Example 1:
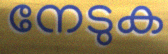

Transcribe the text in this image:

നേടുക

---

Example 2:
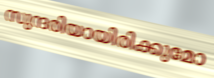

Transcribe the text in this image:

സുന്ദരിയായിരിക്കുമോ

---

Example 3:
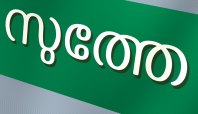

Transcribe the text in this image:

സുത്തേ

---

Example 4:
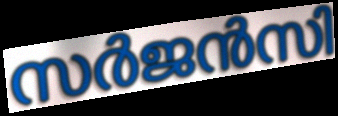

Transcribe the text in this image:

സർജൻസി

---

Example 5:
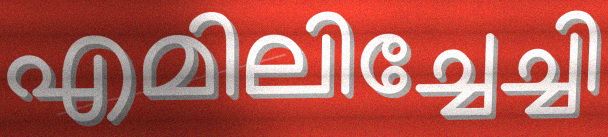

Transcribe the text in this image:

എമിലിച്ചേച്ചി